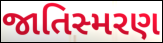
જાતિસ્મરણ